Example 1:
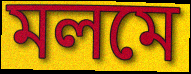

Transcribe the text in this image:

মলমে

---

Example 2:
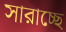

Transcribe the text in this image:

সারাচ্ছে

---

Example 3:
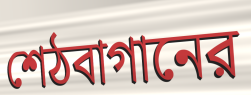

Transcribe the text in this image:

শেঠবাগানের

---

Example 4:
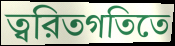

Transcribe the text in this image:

ত্বরিতগতিতে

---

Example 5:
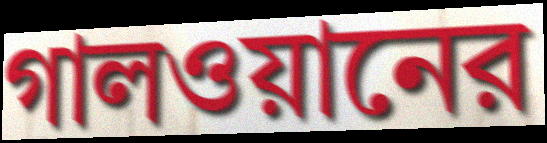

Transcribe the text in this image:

গালওয়ানের